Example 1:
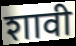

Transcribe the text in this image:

शावी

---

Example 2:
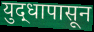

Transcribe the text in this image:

युद्धापासून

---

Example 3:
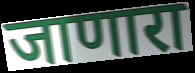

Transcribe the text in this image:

जाणारा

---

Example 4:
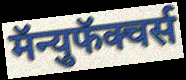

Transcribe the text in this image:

मॅन्युफॅक्चर्स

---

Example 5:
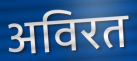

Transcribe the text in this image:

अविरत